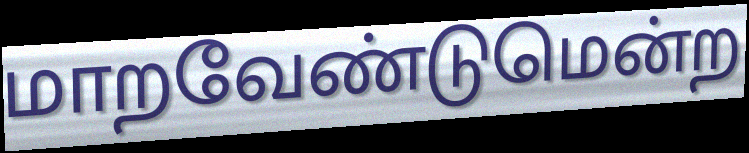
மாறவேண்டுமென்ற